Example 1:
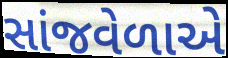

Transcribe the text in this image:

સાંજવેળાએ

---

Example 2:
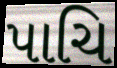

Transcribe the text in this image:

પાચિ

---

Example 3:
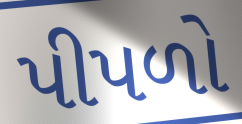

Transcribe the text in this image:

પીપળો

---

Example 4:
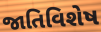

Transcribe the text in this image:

જાતિવિશેષ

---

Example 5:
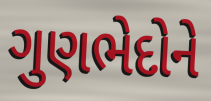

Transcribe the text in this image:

ગુણભેદોને